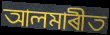
আলমাৰীত